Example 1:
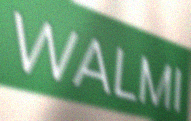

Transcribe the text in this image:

WALMI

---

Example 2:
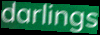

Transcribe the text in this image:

darlings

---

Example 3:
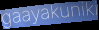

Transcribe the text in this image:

gaayakuniki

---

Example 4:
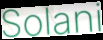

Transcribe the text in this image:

Solani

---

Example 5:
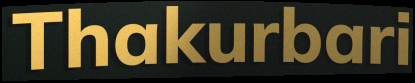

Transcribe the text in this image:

Thakurbari